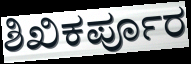
ಶಿಖಿಕರ್ಪೂರ